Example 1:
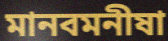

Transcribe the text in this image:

মানবমনীষা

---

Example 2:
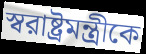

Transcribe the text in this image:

স্বরাষ্ট্রমন্ত্রীকে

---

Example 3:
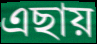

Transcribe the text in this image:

এছায়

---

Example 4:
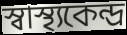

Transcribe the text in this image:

স্বাস্থ্যকেন্দ্র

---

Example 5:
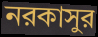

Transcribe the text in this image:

নরকাসুর